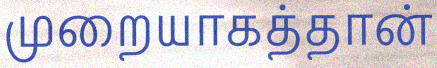
முறையாகத்தான்